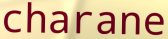
charane